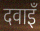
दवाइँ